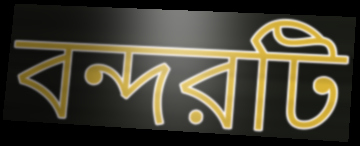
বন্দরটি